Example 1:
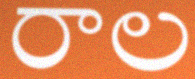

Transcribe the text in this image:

రాల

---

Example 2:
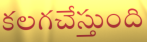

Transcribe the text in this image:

కలగచేస్తుంది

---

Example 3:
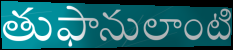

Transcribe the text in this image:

తుఫానులాంటి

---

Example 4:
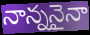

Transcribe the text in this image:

నాన్ననైనా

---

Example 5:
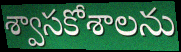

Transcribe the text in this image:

శ్వాసకోశాలను